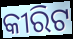
କୀରିଟ